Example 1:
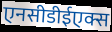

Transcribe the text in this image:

एनसीडीईएक्स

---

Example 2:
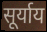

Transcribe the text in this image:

सूर्याय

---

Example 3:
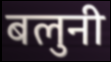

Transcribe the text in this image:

बलुनी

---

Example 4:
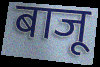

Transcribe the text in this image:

बाजू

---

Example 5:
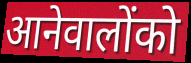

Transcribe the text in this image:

आनेवालोंको